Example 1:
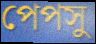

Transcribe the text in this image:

পেপসু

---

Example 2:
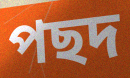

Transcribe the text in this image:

পছদ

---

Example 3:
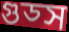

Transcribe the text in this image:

গুড্স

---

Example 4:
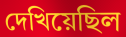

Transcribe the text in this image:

দেখিয়েছিল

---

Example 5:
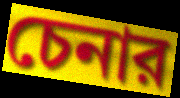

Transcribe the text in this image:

চেনার